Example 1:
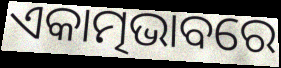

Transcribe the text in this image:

ଏକାତ୍ମଭାବରେ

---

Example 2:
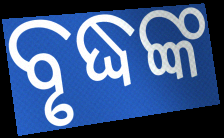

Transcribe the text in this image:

ବୃଦ୍ଧଙ୍କ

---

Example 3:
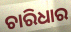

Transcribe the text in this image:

ଚାରିଧାର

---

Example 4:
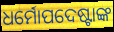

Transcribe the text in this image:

ଧର୍ମୋପଦେଷ୍ଟାଙ୍କ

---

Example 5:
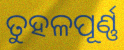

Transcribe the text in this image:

ତୁହଳପୂର୍ଣ୍ଣ